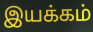
இயக்கம்